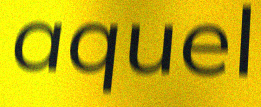
aquel